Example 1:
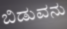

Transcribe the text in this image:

ಬಿಡುವನು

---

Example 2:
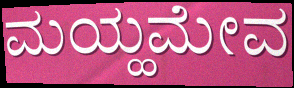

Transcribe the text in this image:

ಮಯ್ಹಮೇವ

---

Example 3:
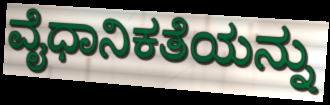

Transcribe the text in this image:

ವೈಧಾನಿಕತೆಯನ್ನು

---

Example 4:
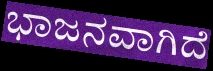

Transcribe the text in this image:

ಭಾಜನವಾಗಿದೆ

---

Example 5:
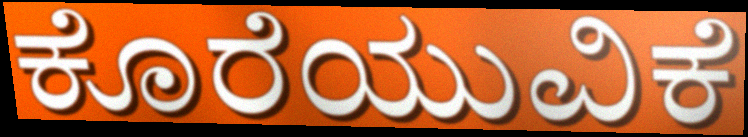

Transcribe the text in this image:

ಕೊರೆಯುವಿಕೆ